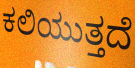
ಕಲಿಯುತ್ತದೆ